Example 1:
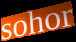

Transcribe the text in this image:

sohor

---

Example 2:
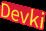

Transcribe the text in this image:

Devki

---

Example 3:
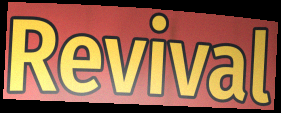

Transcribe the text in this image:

Revival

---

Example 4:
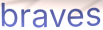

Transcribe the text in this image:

braves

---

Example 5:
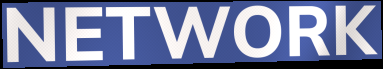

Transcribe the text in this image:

NETWORK